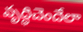
వృద్ధిచెందేలా